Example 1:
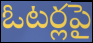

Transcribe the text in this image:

ఓటర్లపై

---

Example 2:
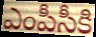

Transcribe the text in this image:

ఎంపీసీకి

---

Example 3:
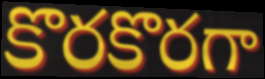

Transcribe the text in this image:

కొరకొరగా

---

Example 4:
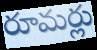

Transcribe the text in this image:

రూమర్లు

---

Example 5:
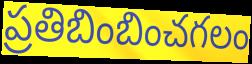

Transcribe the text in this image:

ప్రతిబింబించగలం